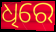
ଧିରେ